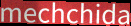
mechchida